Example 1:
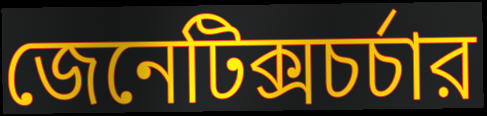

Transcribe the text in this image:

জেনেটিক্সচর্চার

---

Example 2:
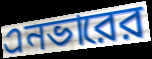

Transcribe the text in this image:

এনভারের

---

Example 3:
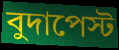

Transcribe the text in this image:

বুদাপেস্ট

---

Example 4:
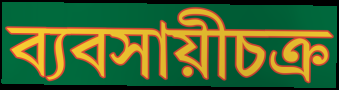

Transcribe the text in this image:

ব্যবসায়ীচক্র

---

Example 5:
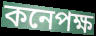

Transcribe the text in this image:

কনেপক্ষ